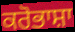
ਕਰੋਭਾਸ਼ਾ